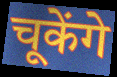
चूकेंगे